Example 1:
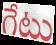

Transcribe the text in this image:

గేటు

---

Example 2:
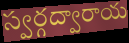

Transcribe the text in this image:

స్వర్గద్వారాయ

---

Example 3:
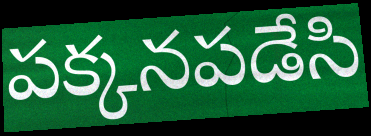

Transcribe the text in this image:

పక్కనపడేసి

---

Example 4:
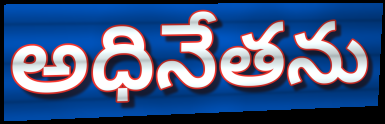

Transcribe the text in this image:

అధినేతను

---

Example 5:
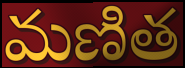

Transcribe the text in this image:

మణిత